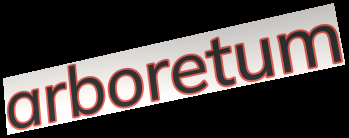
arboretum